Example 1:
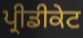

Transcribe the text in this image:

ਪ੍ਰੀਡੀਕੇਟ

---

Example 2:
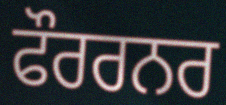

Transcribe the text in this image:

ਫੌਰਰਨਰ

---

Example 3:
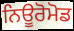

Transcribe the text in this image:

ਨਿਊਰੋਮੋਡ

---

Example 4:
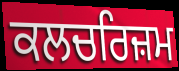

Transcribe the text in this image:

ਕਲਚਰਿਜ਼ਮ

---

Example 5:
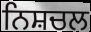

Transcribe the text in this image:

ਨਿਸ਼ਚਲ